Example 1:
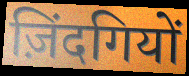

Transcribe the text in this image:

ज़िंदगियों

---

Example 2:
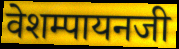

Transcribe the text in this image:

वेशम्पायनजी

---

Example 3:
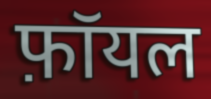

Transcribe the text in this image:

फ़ॉयल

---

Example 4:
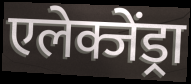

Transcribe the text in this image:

एलेक्जेंड्रा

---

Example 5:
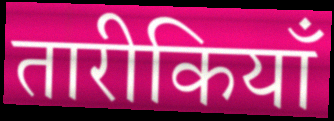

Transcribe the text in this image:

तारीकियाँ